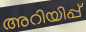
അറിയിപ്പ്